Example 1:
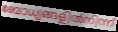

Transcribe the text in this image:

ബോധ്യങ്ങളിൽനിന്ന്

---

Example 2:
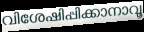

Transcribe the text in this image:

വിശേഷിപ്പിക്കാനാവൂ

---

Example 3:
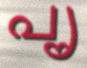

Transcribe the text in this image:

പൄ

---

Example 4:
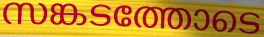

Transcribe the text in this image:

സങ്കടത്തോടെ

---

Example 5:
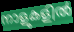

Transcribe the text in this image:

നാളുകളിൽ